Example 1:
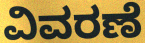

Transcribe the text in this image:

ವಿವರಣೆ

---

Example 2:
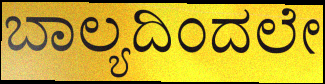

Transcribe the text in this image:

ಬಾಲ್ಯದಿಂದಲೇ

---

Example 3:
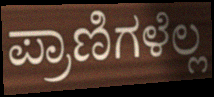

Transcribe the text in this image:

ಪ್ರಾಣಿಗಳೆಲ್ಲ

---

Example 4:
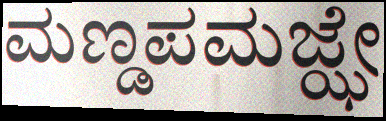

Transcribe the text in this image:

ಮಣ್ಡಪಮಜ್ಝೇ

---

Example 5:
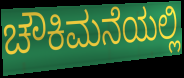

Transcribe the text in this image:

ಚೌಕಿಮನೆಯಲ್ಲಿ